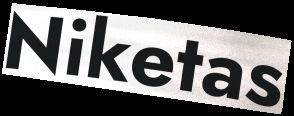
Niketas